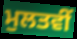
ਮੁਲਤਵੀਂ